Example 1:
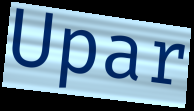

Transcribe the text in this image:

Upar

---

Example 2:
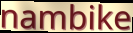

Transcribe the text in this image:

nambike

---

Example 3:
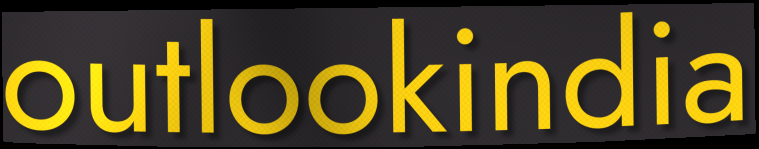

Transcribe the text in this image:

outlookindia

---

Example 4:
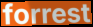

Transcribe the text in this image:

forrest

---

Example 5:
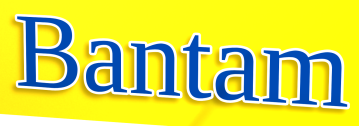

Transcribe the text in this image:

Bantam